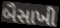
બૈસાખી